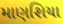
માણશિયા